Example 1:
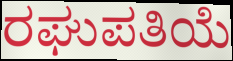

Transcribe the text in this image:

ರಘುಪತಿಯೆ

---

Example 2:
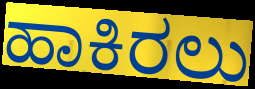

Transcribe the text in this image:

ಹಾಕಿರಲು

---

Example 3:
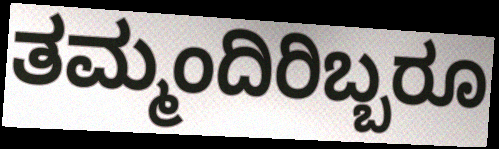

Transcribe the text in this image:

ತಮ್ಮಂದಿರಿಬ್ಬರೂ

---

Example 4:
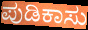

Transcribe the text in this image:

ಪುಡಿಕಾಸು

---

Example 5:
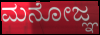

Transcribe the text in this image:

ಮನೋಜ್ಞ